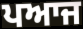
ਪਆਜ